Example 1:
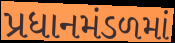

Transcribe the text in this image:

પ્રધાનમંડળમાં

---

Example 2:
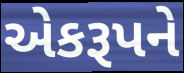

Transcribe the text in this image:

એકરૂપને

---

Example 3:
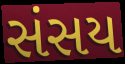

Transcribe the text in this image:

સંસય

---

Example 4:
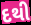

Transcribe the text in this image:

દથી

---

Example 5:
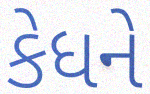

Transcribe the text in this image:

કેધને